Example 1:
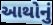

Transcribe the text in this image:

આથોનું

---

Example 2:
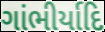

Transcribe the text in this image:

ગાંભીર્યાદિ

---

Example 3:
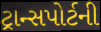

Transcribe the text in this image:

ટ્રાન્સપોર્ટની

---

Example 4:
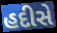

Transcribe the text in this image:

હદીસે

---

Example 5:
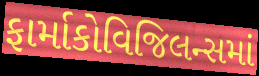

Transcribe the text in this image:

ફાર્માકોવિજિલન્સમાં